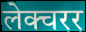
लेक्‍चरर